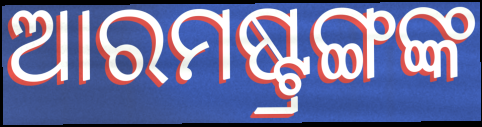
ଆରମଷ୍ଟ୍ରଙ୍ଗଙ୍କ